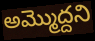
అమ్మొద్దని